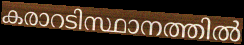
കരാറടിസ്ഥാനത്തിൽ